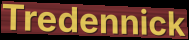
Tredennick